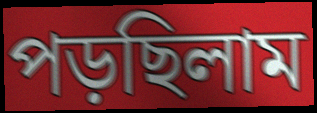
পড়ছিলাম